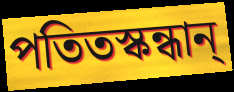
পতিতস্কন্ধান্